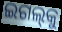
ଇଗଲ୍‌କୁ